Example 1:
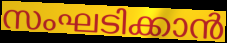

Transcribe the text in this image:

സംഘടിക്കാൻ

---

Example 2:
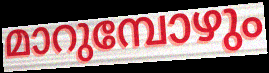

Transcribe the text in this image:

മാറുമ്പോഴും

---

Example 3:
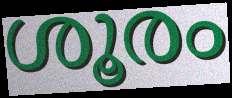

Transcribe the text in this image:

ശൂരം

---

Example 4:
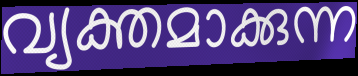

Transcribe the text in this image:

വ്യക്തമാക്കുന്ന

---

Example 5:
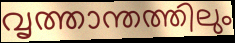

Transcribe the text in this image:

വൃത്താന്തത്തിലും